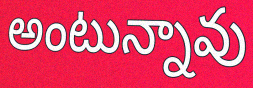
అంటున్నావు